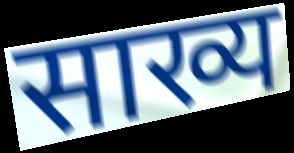
साख्य